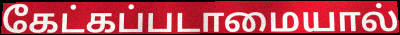
கேட்கப்படாமையால்